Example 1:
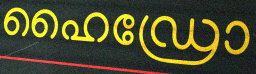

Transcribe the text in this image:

ഹൈഡ്രോ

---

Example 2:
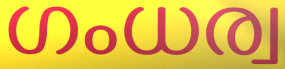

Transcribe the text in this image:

ഗംധര്വ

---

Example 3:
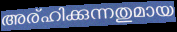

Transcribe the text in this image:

അര്ഹിക്കുന്നതുമായ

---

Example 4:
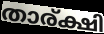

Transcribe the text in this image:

താര്ക്ഷി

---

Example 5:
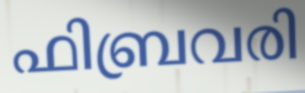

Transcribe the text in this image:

ഫിബ്രവരി